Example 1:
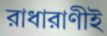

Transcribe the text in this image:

রাধারাণীই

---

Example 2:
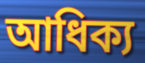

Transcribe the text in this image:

আধিক্য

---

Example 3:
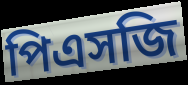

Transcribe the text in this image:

পিএসজি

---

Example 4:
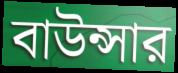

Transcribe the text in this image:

বাউন্সার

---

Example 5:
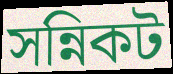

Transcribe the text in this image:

সন্নিকট